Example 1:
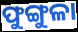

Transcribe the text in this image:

ଫୁଙ୍ଗୁଳା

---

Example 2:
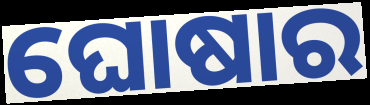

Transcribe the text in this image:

ଘୋଷାର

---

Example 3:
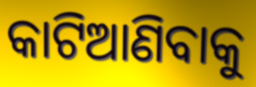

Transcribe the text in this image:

କାଟିଆଣିବାକୁ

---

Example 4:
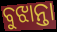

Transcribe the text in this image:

ବୁଝାନ୍ତା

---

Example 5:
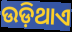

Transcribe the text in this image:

ଉଡ଼ିଥାଏ